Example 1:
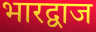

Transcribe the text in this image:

भारद्वाज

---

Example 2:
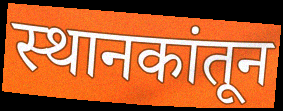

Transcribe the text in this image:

स्थानकांतून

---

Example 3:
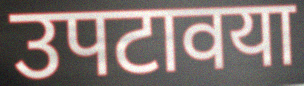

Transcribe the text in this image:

उपटावया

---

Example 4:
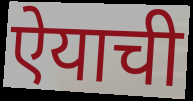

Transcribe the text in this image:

ऐयाची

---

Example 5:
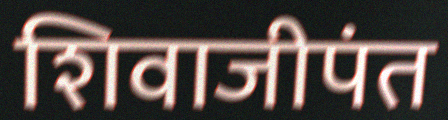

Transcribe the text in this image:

शिवाजीपंत